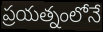
ప్రయత్నంలోనే